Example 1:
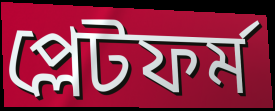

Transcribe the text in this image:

প্লেটফৰ্ম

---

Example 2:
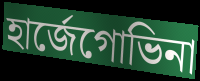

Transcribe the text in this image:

হাৰ্জেগোভিনা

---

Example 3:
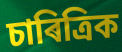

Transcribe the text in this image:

চাৰিত্ৰিক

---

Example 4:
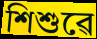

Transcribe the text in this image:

শিশুৱে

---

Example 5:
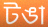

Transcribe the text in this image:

টঙা